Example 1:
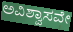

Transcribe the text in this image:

ಅವಿಶ್ವಾಸವೇ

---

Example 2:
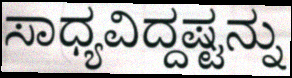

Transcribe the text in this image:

ಸಾಧ್ಯವಿದ್ದಷ್ಟನ್ನು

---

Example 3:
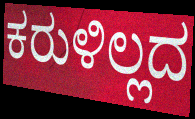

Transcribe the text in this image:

ಕರುಳಿಲ್ಲದ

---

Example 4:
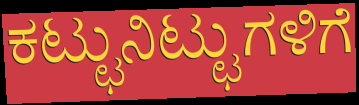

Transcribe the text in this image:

ಕಟ್ಟುನಿಟ್ಟುಗಳಿಗೆ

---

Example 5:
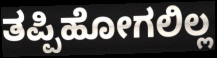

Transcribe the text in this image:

ತಪ್ಪಿಹೋಗಲಿಲ್ಲ